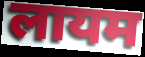
लायम